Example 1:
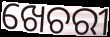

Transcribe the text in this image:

ଖେଚରୀ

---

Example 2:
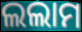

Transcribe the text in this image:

ଲଲାମ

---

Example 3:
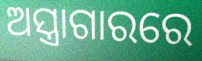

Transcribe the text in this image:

ଅସ୍ତ୍ରାଗାରରେ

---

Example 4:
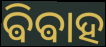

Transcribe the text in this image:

ଵିଵାହ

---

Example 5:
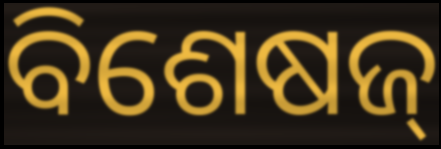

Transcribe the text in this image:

ବିଶେଷଜ୍